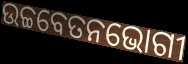
ଉଚ୍ଚବେତନଭୋଗୀ